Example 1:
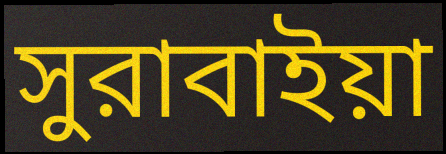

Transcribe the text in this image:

সুরাবাইয়া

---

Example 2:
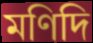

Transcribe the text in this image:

মণিদি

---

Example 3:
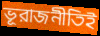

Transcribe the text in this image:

ভূরাজনীতিই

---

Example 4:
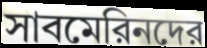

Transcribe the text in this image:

সাবমেরিনদের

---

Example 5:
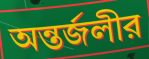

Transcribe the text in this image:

অন্তর্জলীর